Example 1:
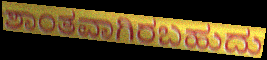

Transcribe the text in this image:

ಶಾಂತವಾಗಿರಬಹುದು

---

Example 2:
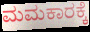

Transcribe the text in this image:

ಮಮಕಾರಕ್ಕೆ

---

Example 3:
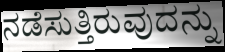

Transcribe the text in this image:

ನಡೆಸುತ್ತಿರುವುದನ್ನು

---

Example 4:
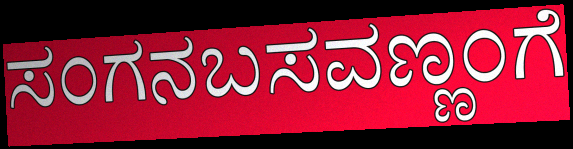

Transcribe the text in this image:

ಸಂಗನಬಸವಣ್ಣಂಗೆ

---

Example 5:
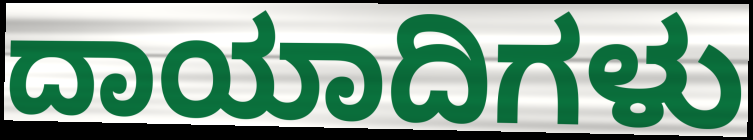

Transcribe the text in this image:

ದಾಯಾದಿಗಳು